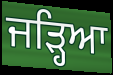
ਜੜ੍ਹਿਆ